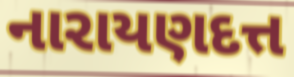
નારાયણદત્ત